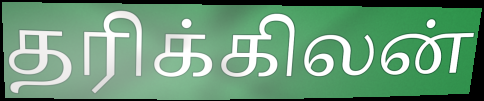
தரிக்கிலன்